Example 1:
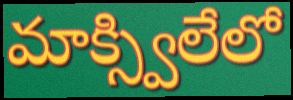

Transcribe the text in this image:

మాక్స్విలేలో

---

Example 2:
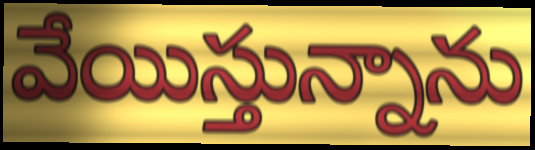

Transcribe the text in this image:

వేయిస్తున్నాను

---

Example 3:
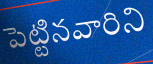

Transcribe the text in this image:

పెట్టినవారిని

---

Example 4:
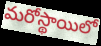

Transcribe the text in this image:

మరోస్థాయిలో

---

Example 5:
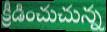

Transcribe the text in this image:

క్రీడించుచున్న